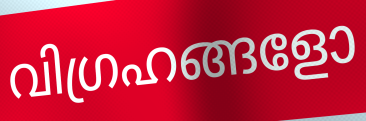
വിഗ്രഹങ്ങളോ